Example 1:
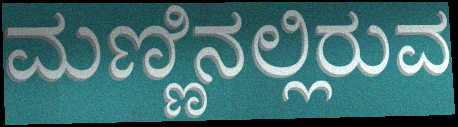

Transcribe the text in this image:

ಮಣ್ಣಿನಲ್ಲಿರುವ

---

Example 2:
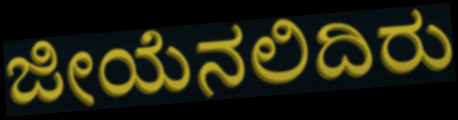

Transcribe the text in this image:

ಜೀಯೆನಲಿದಿರು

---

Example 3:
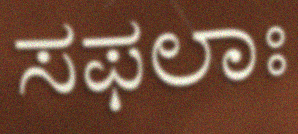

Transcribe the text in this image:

ಸಫಲಾಃ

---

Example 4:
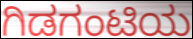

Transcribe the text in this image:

ಗಿಡಗಂಟಿಯ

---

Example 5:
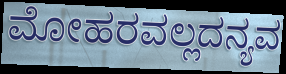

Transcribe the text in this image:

ಮೋಹರವಲ್ಲದನ್ಯವ